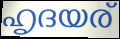
ഹൃദയര്